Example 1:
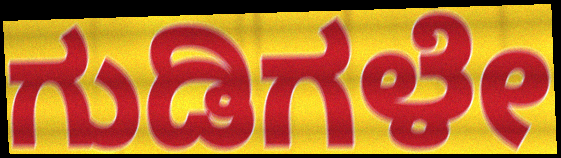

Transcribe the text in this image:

ಗುಡಿಗಳೇ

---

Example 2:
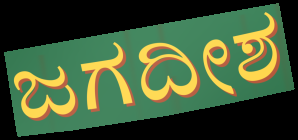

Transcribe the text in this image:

ಜಗದೀಶ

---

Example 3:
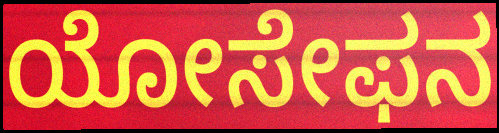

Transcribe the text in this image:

ಯೋಸೇಫನ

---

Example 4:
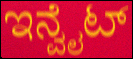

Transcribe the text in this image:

ಇನ್ವೈಟ್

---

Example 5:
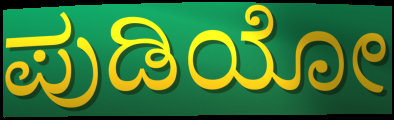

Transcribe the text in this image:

ಪುಡಿಯೋ